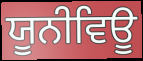
ਯੂਨੀਵਿਊ